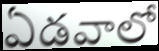
ఏడవాలో